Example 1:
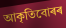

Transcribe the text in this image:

আকৃতিবোৰৰ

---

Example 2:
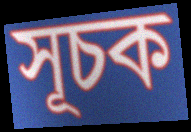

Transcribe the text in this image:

সূচক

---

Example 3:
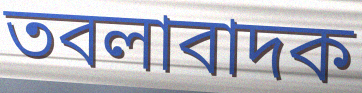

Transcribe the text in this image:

তবলাবাদক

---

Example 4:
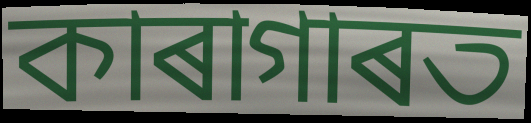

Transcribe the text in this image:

কাৰাগাৰত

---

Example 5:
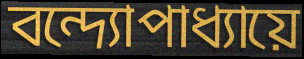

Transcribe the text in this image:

বন্দ্যোপাধ্যায়ে